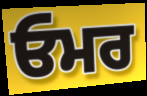
ਓਮਰ